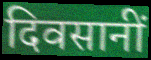
दिवसानीं